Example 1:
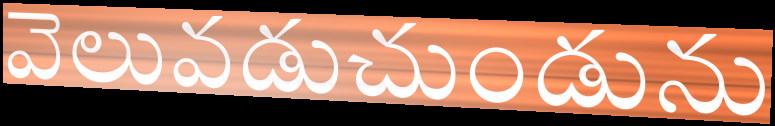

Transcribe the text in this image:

వెలువడుచుండును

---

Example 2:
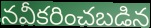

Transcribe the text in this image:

నవీకరించబడిన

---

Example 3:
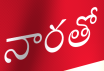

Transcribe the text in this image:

నారతో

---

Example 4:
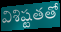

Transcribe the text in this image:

విశిష్టతతో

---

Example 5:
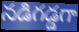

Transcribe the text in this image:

నడిగడ్డగా